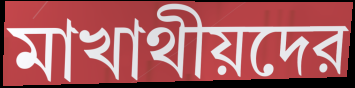
মাখাথীয়দের